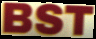
BST